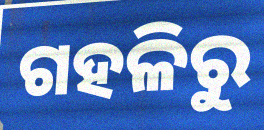
ଗହଳିରୁ